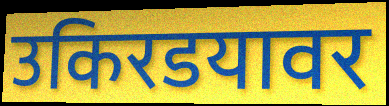
उकिरडयावर